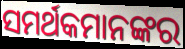
ସମର୍ଥକମାନଙ୍କର